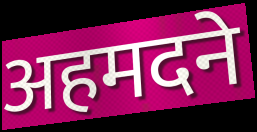
अहमदने